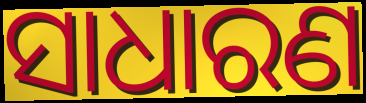
ସାଧାରଣ